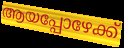
ആയപ്പോഴേക്ക്